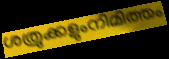
ശത്രുക്കളുംനിമിത്തം